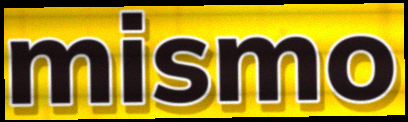
mismo